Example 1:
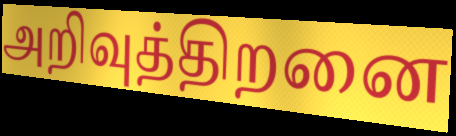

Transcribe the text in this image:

அறிவுத்திறனை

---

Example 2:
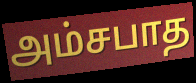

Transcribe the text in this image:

அம்சபாத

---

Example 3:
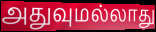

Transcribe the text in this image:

அதுவுமல்லாது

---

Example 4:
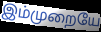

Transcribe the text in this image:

இம்முறையே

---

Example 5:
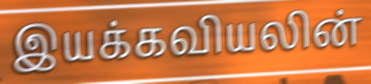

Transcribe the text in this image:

இயக்கவியலின்